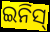
ଇନିସ୍